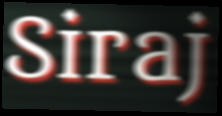
Siraj